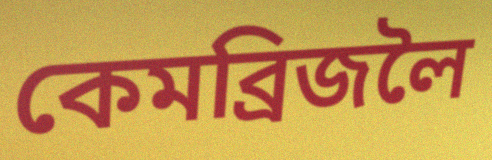
কেমব্ৰিজলৈ